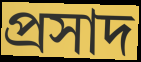
প্রসাদ